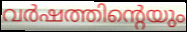
വർഷത്തിന്റെയും